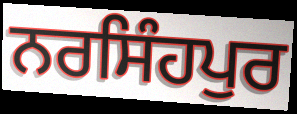
ਨਰਸਿੰਹਪੁਰ